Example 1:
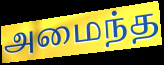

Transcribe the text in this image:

அமைந்த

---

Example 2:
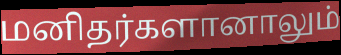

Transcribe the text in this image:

மனிதர்களானாலும்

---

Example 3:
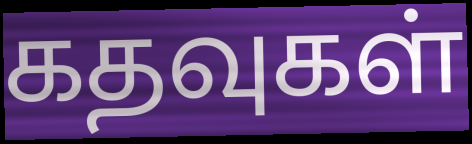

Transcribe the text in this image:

கதவுகள்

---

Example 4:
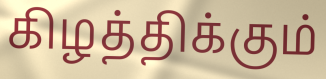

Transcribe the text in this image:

கிழத்திக்கும்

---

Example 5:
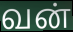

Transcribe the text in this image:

வன்